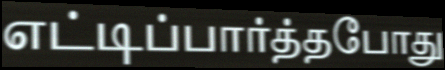
எட்டிப்பார்த்தபோது